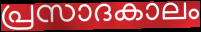
പ്രസാദകാലം